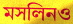
মসলিনও